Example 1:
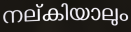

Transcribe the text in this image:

നല്‌കിയാലും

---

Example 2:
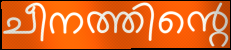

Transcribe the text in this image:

ചീനത്തിന്റെ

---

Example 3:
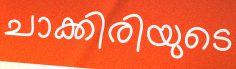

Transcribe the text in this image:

ചാക്കിരിയുടെ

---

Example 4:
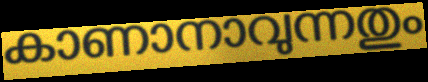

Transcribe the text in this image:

കാണാനാവുന്നതും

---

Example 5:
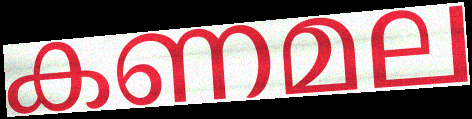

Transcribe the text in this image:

കണമല